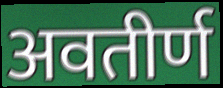
अवतीर्ण